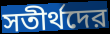
সতীর্থদের